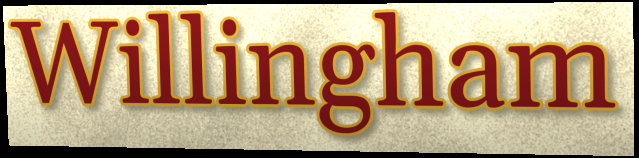
Willingham